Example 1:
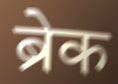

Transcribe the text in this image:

ब्रेक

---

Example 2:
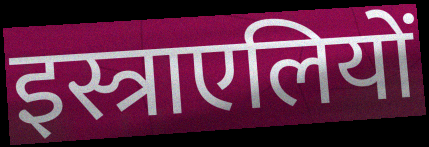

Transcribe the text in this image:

इस्त्राएलियों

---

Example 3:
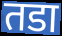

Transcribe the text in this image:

तडा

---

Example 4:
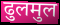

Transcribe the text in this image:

ढुलमुल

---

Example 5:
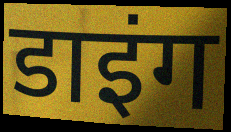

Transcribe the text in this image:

डाइंग